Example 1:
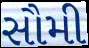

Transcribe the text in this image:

સૌમી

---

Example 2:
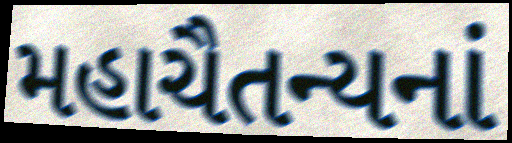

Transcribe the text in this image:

મહાચૈતન્યનાં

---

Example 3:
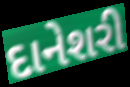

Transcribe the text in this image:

દાનેશરી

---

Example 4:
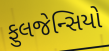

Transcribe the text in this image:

ફુલજેન્સિયો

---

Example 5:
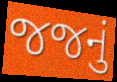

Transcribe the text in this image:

જજનું